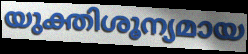
യുക്തിശൂന്യമായ